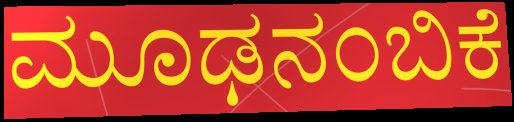
ಮೂಢನಂಬಿಕೆ